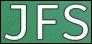
JFS